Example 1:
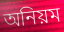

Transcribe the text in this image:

অনিয়ম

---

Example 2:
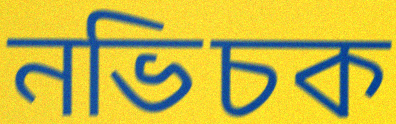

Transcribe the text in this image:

নভিচক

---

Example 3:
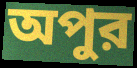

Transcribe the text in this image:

অপুর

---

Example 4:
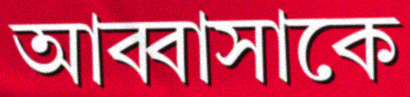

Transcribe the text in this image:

আব্বাসাকে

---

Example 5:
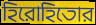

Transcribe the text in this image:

হিরোহিতোর